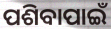
ପଶିବାପାଇଁ